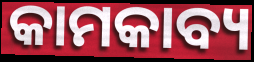
କାମକାବ୍ୟ